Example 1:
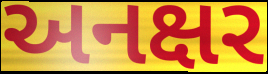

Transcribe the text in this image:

અનક્ષર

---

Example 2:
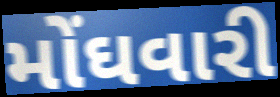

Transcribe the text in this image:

મોંઘવારી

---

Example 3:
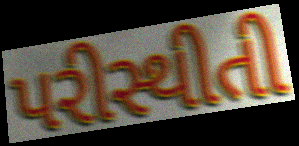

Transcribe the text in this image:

પરીસ્થીતી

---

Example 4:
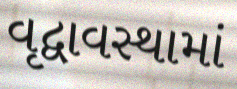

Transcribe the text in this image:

વૃદ્વાવસ્થામાં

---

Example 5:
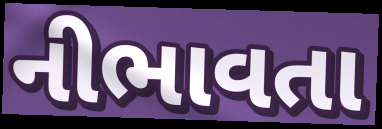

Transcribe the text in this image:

નીભાવતા